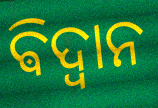
ଵିଦ୍ଵାନ